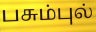
பசும்புல்